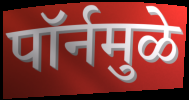
पॉर्नमुळे